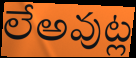
లేఅవుట్ల